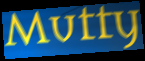
Mutty